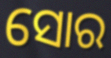
ସୋର